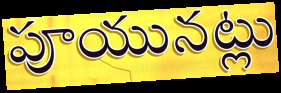
పూయునట్లు